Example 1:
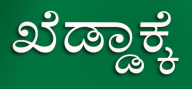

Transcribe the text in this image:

ಖೆಡ್ಡಾಕ್ಕೆ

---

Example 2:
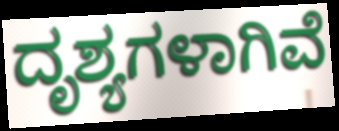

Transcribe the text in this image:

ದೃಶ್ಯಗಳಾಗಿವೆ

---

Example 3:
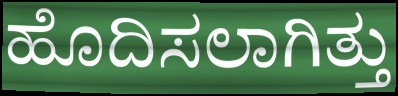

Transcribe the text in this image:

ಹೊದಿಸಲಾಗಿತ್ತು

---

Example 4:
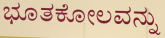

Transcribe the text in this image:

ಭೂತಕೋಲವನ್ನು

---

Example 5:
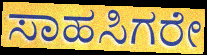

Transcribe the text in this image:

ಸಾಹಸಿಗರೇ